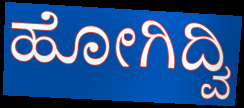
ಹೋಗಿದ್ವಿ